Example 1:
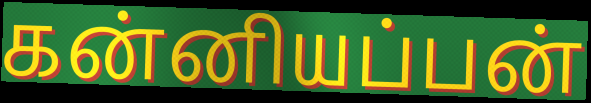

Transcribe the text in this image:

கன்னியப்பன்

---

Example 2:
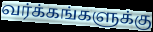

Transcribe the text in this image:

வர்க்கங்களுக்கு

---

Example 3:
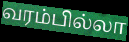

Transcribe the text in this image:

வரம்பில்லா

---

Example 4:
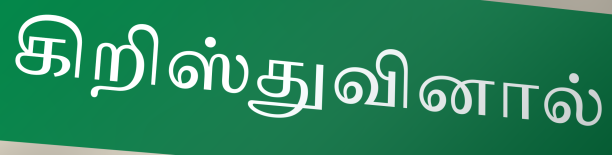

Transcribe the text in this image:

கிறிஸ்துவினால்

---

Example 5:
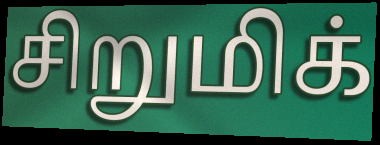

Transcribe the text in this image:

சிறுமிக்